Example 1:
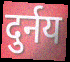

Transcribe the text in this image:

दुर्नय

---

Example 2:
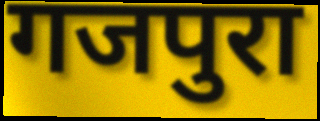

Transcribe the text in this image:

गजपुरा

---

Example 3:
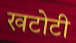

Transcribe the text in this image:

खटोटी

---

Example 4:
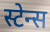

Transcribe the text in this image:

स्टेन्स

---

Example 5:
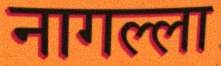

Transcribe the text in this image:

नागल्ला